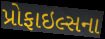
પ્રોફાઇલ્સના